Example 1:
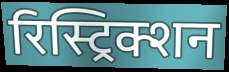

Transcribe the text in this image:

रिस्ट्रिक्शन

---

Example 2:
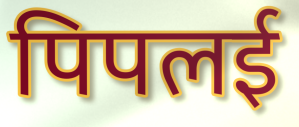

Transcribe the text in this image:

पिपलई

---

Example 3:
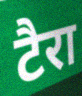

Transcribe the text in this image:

टैरा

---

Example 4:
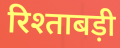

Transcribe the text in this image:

रिश्ताबड़ी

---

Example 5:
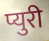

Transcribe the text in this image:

प्युरी